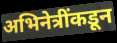
अभिनेत्रींकडून